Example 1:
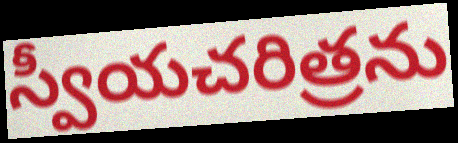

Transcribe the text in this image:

స్వీయచరిత్రను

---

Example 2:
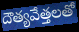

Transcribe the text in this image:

దౌత్యవేత్తలతో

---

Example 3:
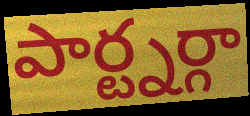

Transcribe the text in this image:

పార్ట్నర్గా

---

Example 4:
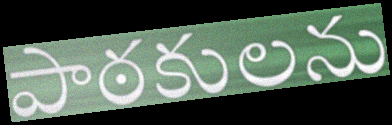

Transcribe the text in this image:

పాఠకులను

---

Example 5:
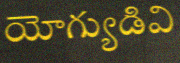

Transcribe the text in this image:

యోగ్యుడివి